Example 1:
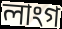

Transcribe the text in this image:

লাংগ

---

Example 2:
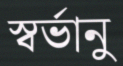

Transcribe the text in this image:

স্বর্ভানু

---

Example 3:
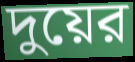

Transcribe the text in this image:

দুয়ের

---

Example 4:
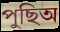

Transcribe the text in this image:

পুছিঅ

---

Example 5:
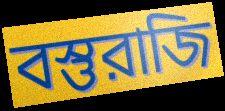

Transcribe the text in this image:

বস্তুরাজি